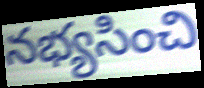
నభ్యసించి